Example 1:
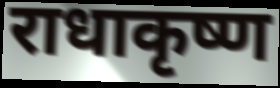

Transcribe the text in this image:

राधाकृष्ण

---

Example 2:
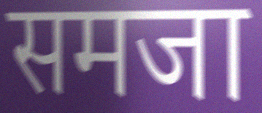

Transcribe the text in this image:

समजा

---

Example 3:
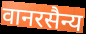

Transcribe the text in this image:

वानरसैन्य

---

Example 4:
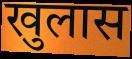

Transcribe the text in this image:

खुलास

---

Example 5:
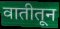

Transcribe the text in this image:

वातीतून